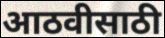
आठवीसाठी